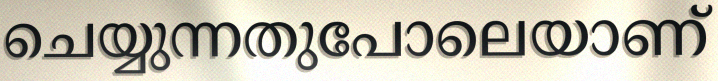
ചെയ്യുന്നതുപോലെയാണ്